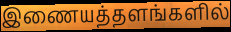
இணையத்தளங்களில்